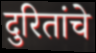
दुरितांचे